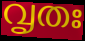
വൃതഃ